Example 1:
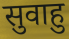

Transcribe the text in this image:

सुवाहु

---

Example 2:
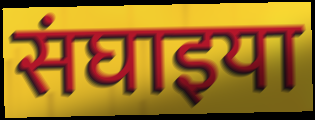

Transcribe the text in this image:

संघाइया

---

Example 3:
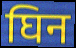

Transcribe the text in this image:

घिन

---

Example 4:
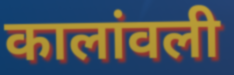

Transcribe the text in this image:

कालांवली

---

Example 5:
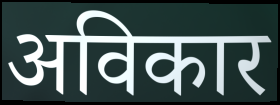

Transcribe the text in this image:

अविकार